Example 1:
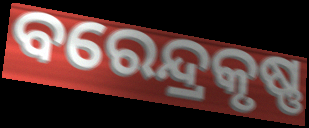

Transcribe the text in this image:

ବରେନ୍ଦ୍ରକୃଷ୍ଣ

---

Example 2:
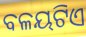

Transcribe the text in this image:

ବଳୟଟିଏ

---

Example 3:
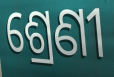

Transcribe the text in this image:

ଶ୍ରେଣୀ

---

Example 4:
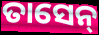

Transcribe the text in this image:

ତାସେନ୍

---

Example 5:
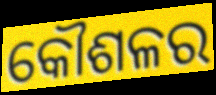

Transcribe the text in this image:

କୌଶଳର